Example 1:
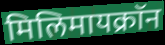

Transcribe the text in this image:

मिलिमायक्रॉन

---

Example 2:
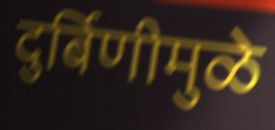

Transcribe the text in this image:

दुर्बिणीमुळे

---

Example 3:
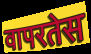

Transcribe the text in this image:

वापरतेस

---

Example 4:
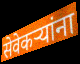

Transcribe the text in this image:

सेवेकऱ्यांना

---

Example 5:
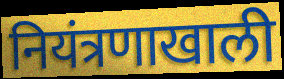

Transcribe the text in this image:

नियंत्रणाखाली